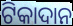
ଟିକାଦାନ